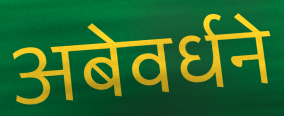
अबेवर्धने